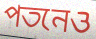
পতনেও